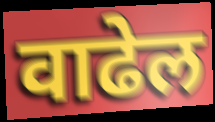
वाढेल